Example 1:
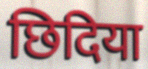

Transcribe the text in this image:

छिदिया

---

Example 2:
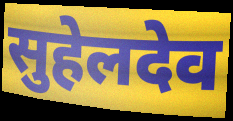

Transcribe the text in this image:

सुहेलदेव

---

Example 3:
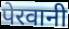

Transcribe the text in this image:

पेरवानी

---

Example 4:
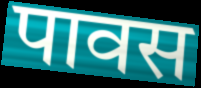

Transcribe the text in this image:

पावस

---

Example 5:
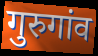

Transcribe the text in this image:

गुरुगांव